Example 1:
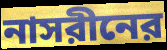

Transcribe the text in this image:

নাসরীনের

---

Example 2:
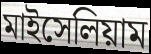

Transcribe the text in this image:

মাইসেলিয়াম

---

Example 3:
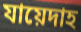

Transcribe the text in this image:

যায়েদাহ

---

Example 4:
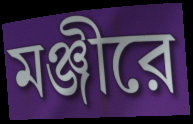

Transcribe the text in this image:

মঞ্জীরে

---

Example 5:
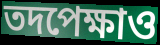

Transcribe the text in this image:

তদপেক্ষাও